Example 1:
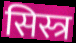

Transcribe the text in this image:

सिस्त्र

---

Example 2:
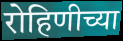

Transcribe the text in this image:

रोहिणीच्या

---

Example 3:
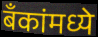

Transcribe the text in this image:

बँकांमध्ये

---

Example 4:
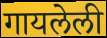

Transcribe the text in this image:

गायलेली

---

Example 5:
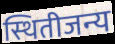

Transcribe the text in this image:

स्थितीजन्य